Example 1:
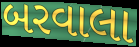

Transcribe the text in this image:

બરવાલા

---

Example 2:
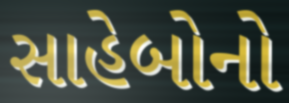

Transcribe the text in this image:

સાહેબોનો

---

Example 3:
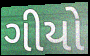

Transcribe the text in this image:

ગીયો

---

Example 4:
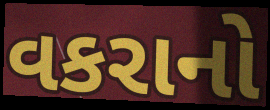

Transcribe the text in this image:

વકરાનો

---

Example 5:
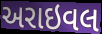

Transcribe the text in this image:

અરાઇવલ